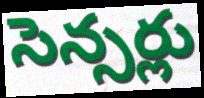
సెన్సర్లు